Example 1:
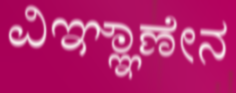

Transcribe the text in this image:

ವಿಞ್ಞಾಣೇನ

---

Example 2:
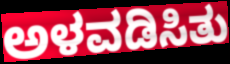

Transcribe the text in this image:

ಅಳವಡಿಸಿತು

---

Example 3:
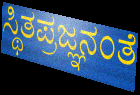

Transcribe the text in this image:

ಸ್ಥಿತಪ್ರಜ್ಞನಂತೆ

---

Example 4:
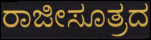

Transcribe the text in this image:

ರಾಜೀಸೂತ್ರದ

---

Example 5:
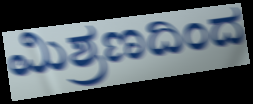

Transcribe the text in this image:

ಮಿಶ್ರಣದಿಂದ